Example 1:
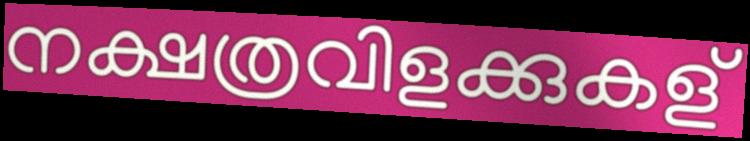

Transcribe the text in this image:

നക്ഷത്രവിളക്കുകള്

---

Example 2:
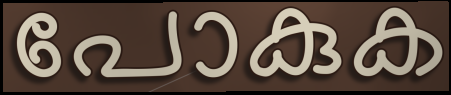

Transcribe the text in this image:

പോകുക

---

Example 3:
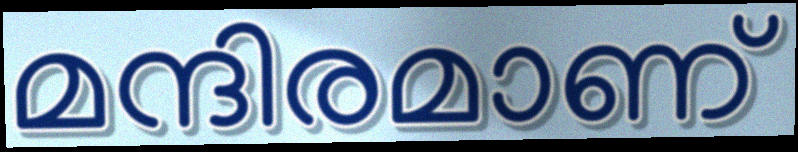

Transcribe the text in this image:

മന്ദിരമാണ്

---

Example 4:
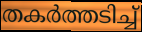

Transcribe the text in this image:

തകർത്തടിച്ച്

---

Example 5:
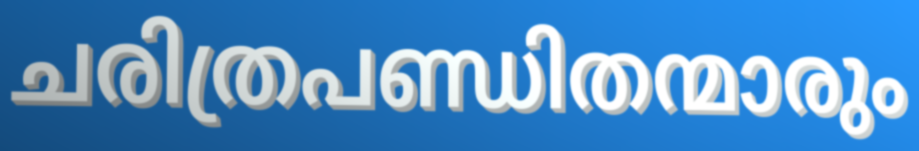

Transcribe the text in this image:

ചരിത്രപണ്ഡിതന്മാരും